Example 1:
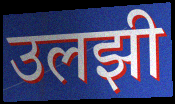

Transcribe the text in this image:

उलझी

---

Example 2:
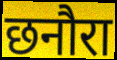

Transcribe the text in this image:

छनौरा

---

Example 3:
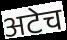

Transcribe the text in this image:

अटेच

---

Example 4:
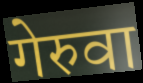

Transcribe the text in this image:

गेरुवा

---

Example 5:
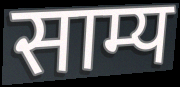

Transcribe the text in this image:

साम्‍य